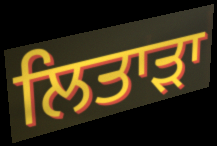
ਲਿਤਾੜਾ